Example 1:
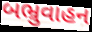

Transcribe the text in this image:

બભ્રુવાહન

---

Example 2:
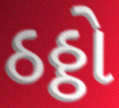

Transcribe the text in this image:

ઠઠ્ઠો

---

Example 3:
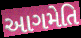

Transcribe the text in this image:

આગમેતિ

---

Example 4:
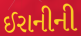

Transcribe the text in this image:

ઈરાનીની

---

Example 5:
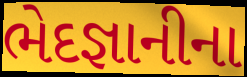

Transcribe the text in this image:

ભેદજ્ઞાનીના